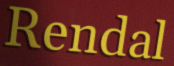
Rendal